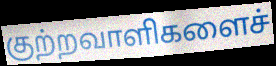
குற்றவாளிகளைச்